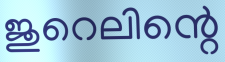
ജുറെലിന്റെ